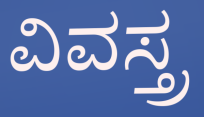
ವಿವಸ್ತ್ರ